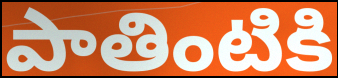
పాతింటికి